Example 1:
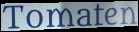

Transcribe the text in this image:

Tomaten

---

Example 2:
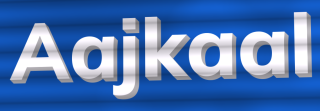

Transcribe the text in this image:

Aajkaal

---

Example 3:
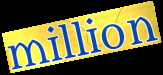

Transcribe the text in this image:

million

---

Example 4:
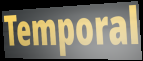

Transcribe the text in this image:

Temporal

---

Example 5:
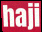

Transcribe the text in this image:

haji